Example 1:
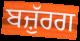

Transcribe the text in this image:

ਬਜ਼ੁੱਰਗ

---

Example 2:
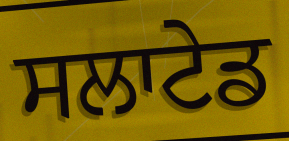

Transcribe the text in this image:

ਸਲਾਟੇਡ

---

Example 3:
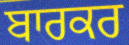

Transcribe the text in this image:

ਬਾਰਕਰ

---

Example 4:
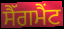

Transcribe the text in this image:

ਸੈੱਗਮੈਂਟ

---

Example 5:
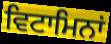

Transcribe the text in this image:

ਵਿਟਾਮਿਨਾਂ